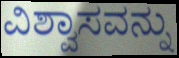
ವಿಶ್ವಾಸವನ್ನು